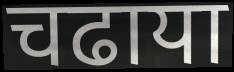
चढाया